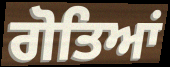
ਗੋਤਿਆਂ